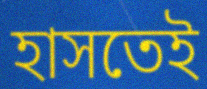
হাসতেই